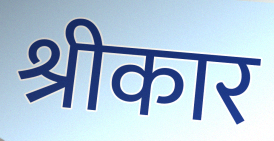
श्रीकार